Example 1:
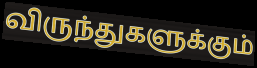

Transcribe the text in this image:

விருந்துகளுக்கும்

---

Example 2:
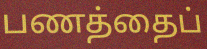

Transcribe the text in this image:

பணத்தைப்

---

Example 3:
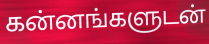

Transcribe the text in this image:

கன்னங்களுடன்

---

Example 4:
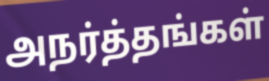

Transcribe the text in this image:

அநர்த்தங்கள்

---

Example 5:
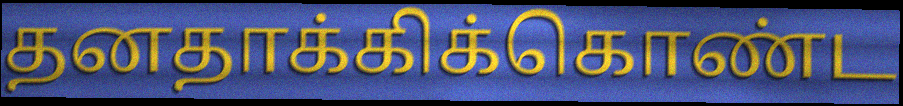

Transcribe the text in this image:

தனதாக்கிக்கொண்ட